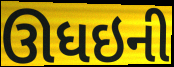
ઊધઇની